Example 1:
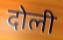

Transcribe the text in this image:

दोली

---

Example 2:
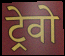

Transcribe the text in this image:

ट्रेवो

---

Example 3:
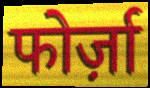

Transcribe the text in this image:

फोर्ज़ा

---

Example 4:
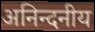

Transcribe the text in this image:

अनिन्दनीय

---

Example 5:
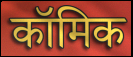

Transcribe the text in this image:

कॉमिक